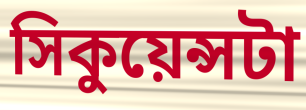
সিকুয়েন্সটা